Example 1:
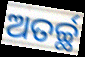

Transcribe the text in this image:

ଅତର୍ଚ୍ଛ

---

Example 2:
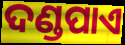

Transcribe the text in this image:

ଦଣ୍ଡପାଏ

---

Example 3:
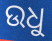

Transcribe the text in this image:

ଉଧୁ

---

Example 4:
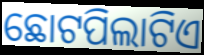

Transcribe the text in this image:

ଛୋଟପିଲାଟିଏ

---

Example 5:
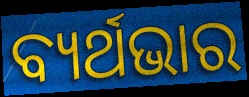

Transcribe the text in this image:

ବ୍ୟର୍ଥଭାର